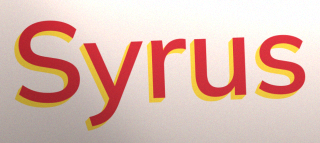
Syrus